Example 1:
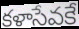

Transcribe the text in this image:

కళాసేవకే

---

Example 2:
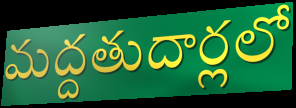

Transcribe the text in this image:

మద్దతుదార్లలో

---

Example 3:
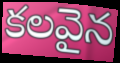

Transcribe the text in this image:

కలవైన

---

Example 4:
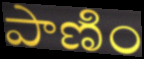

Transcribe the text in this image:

పాణిం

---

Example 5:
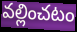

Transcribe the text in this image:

వల్లించటం